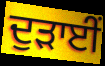
ਦੁੜਾਈਂ